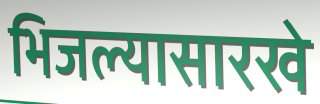
भिजल्यासारखे